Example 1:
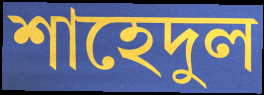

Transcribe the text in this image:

শাহেদুল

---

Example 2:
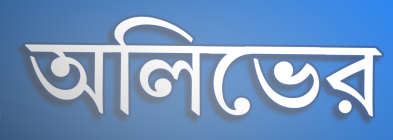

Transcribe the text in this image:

অলিভের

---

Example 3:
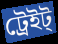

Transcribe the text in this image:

ট্রেইট্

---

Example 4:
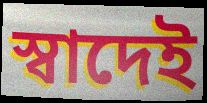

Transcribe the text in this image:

স্বাদেই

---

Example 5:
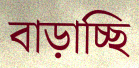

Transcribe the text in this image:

বাড়াচ্ছি